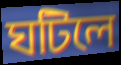
ঘটিলে